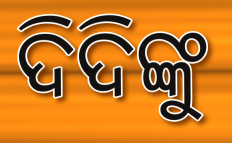
ଦିଦିଙ୍କୁ